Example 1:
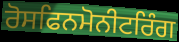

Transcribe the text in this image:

ਰੋਸਫਿਨਮੋਨੀਟਰਿੰਗ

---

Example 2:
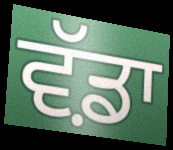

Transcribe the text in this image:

ਵ਼ੱਡਾ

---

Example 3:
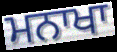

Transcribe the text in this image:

ਮਨਾਖਾ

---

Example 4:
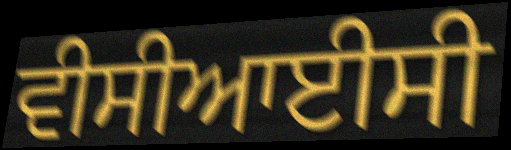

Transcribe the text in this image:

ਵੀਸੀਆਈਸੀ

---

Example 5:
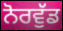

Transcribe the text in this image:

ਨੋਰਵੁੱਡ